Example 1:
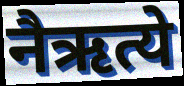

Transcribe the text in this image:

नैऋत्ये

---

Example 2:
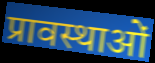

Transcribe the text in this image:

प्रावस्थाओं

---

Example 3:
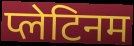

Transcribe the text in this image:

प्लेटिनम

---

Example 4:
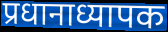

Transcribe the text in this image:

प्रधानाध्यापक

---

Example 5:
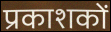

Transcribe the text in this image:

प्रकाशकों